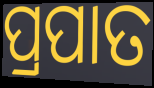
ପ୍ରପାତ